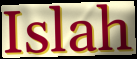
Islah